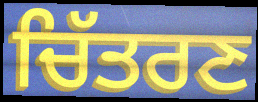
ਚਿੱਤਰਣ